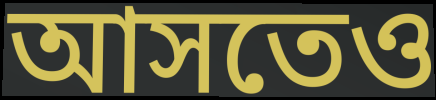
আসতেও